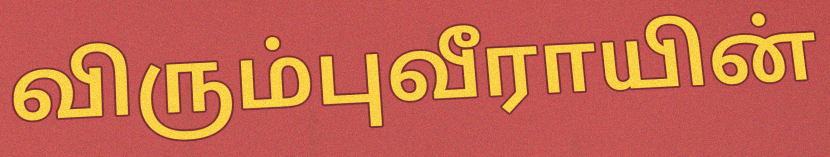
விரும்புவீராயின்